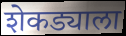
शेकड्याला